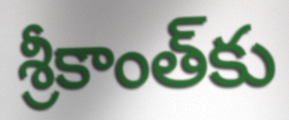
శ్రీకాంత్‌కు